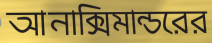
আনাক্সিমান্ডরের